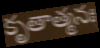
కృతాత్మనః